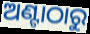
ଅଣ୍ଟାଠାରୁ